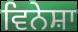
ਵਿਨੇਸ਼ਾ